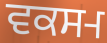
ਵਕਸ੍ਮ